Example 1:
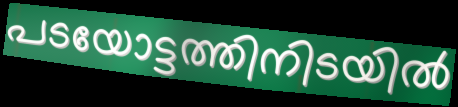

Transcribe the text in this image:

പടയോട്ടത്തിനിടയിൽ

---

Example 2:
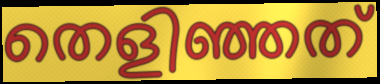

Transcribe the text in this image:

തെളിഞ്ഞത്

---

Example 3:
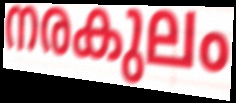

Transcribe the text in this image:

നരകുലം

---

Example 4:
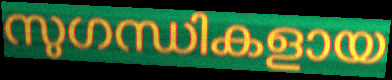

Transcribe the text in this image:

സുഗന്ധികളായ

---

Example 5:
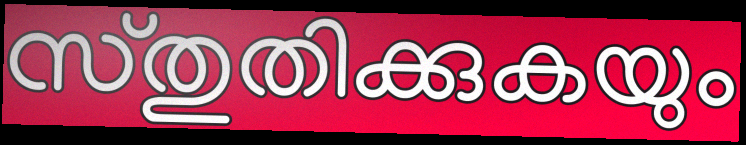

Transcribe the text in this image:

സ്തുതിക്കുകയും